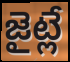
జైట్లే